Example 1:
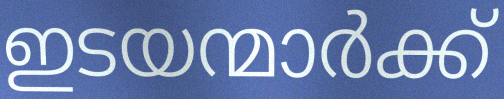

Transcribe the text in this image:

ഇടയന്മാർക്ക്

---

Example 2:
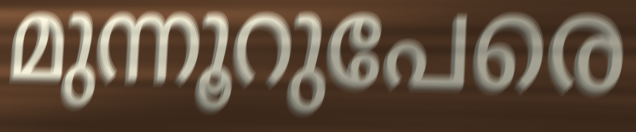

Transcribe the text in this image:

മുന്നൂറുപേരെ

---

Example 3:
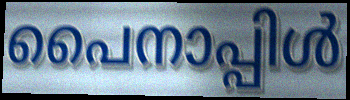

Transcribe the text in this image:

പൈനാപ്പിൾ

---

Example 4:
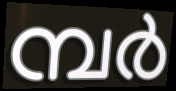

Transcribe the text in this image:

മ്പർ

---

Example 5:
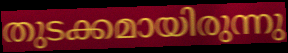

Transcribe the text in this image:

തുടക്കമായിരുന്നു